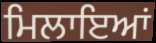
ਮਿਲਾਇਆਂ